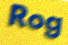
Rog